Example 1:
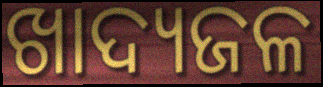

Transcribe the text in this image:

ଖାଦ୍ୟଜଳ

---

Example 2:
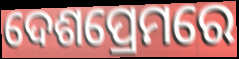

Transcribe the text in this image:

ଦେଶପ୍ରେମରେ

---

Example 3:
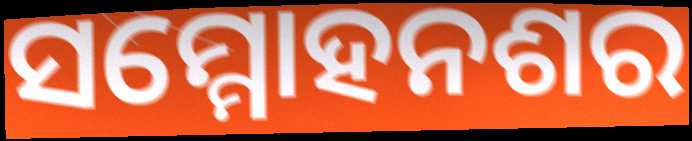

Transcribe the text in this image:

ସମ୍ମୋହନଶର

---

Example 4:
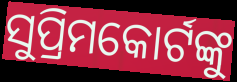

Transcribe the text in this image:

ସୁପ୍ରିମକୋର୍ଟଙ୍କୁ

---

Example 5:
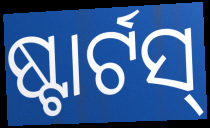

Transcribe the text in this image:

ଷ୍ଟାର୍ଟସ୍